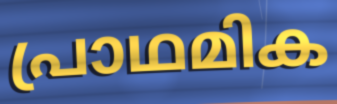
പ്രാഥമിക